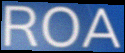
ROA